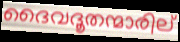
ദൈവദൂതന്മാരില്